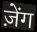
ज़ेंग